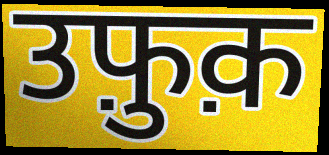
उफ़ुक़